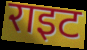
राइट